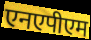
एनएपीएम